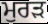
ਮੁਰੜ